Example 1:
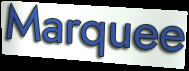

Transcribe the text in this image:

Marquee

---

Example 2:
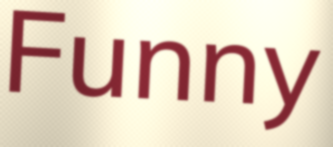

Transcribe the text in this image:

Funny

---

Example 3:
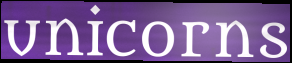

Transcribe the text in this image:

unicorns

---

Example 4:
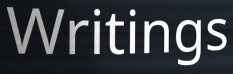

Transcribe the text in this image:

Writings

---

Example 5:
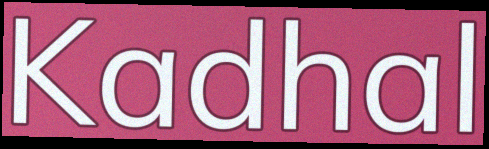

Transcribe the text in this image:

Kadhal